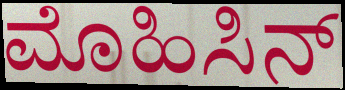
ಮೊಹಿಸಿನ್